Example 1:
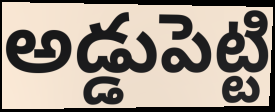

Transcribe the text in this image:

అడ్డుపెట్టి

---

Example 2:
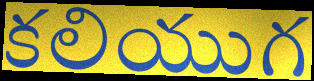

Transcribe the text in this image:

కలియుగ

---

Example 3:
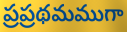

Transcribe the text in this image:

ప్రప్రథమముగా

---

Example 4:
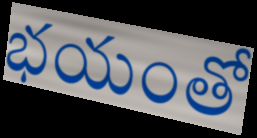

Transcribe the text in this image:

భయంతో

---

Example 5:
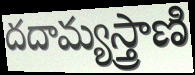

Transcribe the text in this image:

దదామ్యస్త్రాణి